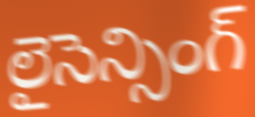
లైసెన్సింగ్